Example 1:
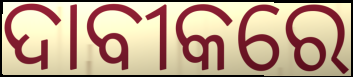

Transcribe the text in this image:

ଦାବୀକରେ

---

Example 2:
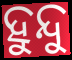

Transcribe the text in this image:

ହୁନ୍ଦୁ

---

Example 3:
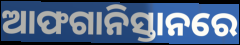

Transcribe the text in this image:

ଆଫଗାନିସ୍ତାନରେ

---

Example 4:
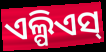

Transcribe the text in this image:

ଏଲ୍ପିଏସ୍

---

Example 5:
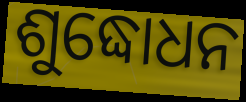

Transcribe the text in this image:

ଶୁଦ୍ଧୋଧନ